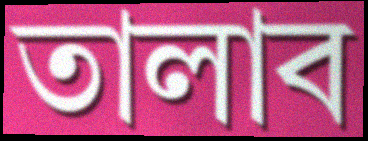
তালাব